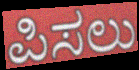
ಪಿಸಲು